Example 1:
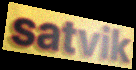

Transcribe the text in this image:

satvik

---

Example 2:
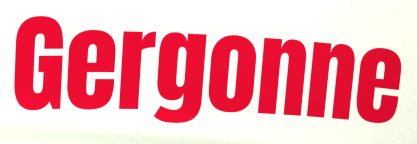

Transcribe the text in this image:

Gergonne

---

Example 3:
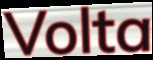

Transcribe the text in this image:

Volta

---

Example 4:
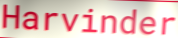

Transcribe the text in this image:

Harvinder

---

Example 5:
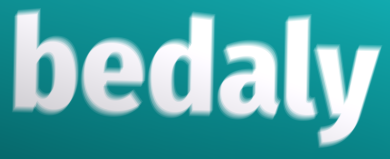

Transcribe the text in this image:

bedaly